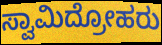
ಸ್ವಾಮಿದ್ರೋಹರು